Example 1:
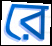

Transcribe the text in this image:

রে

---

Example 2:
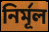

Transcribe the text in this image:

নির্মূল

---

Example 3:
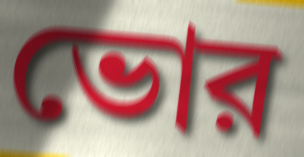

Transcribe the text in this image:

ভোর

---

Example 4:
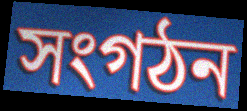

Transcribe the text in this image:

সংগঠন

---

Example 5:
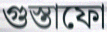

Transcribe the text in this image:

গুস্তাফো